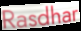
Rasdhar